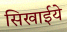
सिखाईये